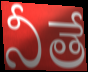
నీతే